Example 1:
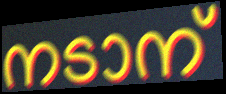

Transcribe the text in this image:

നടാന്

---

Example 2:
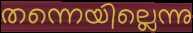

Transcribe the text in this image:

തന്നെയില്ലെന്നു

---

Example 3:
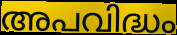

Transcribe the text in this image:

അപവിദ്ധം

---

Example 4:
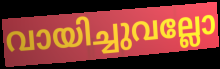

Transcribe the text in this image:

വായിച്ചുവല്ലോ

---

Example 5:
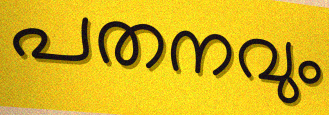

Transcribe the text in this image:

പതനവും